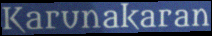
Karunakaran